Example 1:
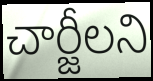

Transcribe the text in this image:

చార్జీలని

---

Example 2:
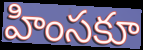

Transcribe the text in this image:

హింసకూ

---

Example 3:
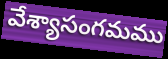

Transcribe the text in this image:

వేశ్యాసంగమము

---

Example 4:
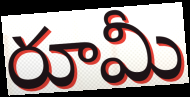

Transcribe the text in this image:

రూమీ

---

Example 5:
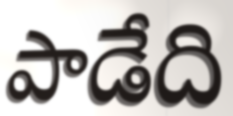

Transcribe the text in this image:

పాడేది